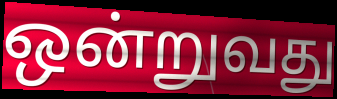
ஒன்றுவது